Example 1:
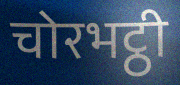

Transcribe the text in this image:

चोरभट्ठी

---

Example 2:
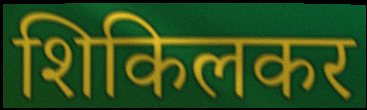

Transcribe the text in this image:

शिकिलकर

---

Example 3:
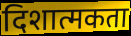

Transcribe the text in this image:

दिशात्मकता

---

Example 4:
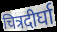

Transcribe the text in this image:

चित्रदीर्घा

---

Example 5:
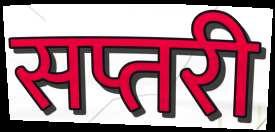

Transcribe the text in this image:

सप्तरी